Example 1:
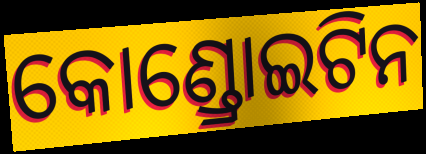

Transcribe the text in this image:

କୋଣ୍ଡ୍ରୋଇଟିନ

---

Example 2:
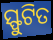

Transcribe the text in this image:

ସ୍ଫୁଟିତ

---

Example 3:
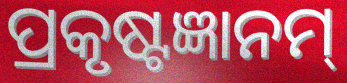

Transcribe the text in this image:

ପ୍ରକୃଷ୍ଟଜ୍ଞାନମ୍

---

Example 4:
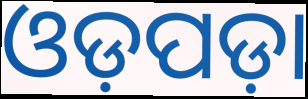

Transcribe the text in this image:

ଓଡ଼ପଡ଼ା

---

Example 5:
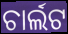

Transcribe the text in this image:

ଚାର୍ଲଟ